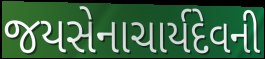
જયસેનાચાર્યદેવની